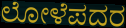
ಲೋಳೆಪದರ